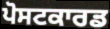
ਪੋਸਟਕਾਰਡ